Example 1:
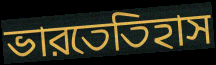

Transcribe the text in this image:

ভারতেতিহাস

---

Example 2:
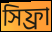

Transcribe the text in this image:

সিফ্রা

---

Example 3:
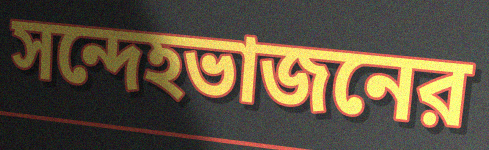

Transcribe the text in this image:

সন্দেহভাজনের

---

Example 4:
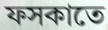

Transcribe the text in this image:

ফসকাতে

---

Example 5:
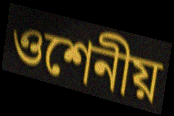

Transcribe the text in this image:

ওশেনীয়